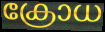
ക്രോധ